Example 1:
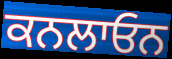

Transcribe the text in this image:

ਕਨਲਾਓਨ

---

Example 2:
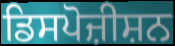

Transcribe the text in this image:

ਡਿਸਪੋਜ਼ੀਸ਼ਨ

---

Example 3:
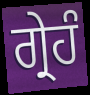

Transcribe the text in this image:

ਗ੍ਰੇਹੰ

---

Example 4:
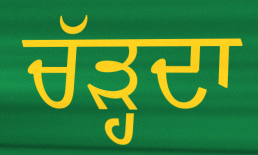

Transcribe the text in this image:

ਚੱੜ੍ਹਦਾ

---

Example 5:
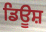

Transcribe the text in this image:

ਡਿਊਸ਼